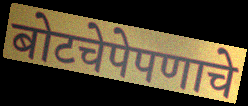
बोटचेपेपणाचे